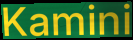
Kamini